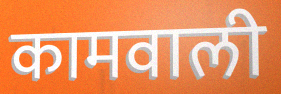
कामवाली